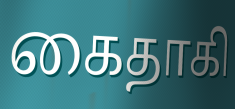
கைதாகி